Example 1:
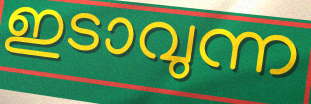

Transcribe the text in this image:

ഇടാവുന്ന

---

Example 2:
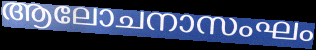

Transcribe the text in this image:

ആലോചനാസംഘം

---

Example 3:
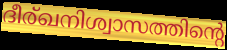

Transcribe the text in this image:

ദീര്ഖനിശ്വാസത്തിന്റെ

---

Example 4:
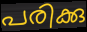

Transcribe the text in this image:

പരിക്കു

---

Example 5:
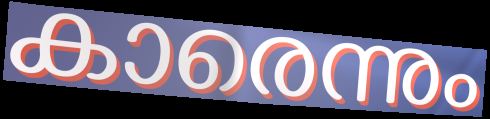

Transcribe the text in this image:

കാരെന്നും